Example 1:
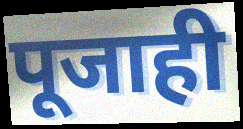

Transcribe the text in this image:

पूजाही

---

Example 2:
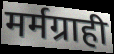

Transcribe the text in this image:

मर्मग्राही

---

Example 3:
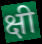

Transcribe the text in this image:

क्षी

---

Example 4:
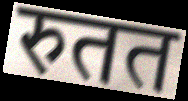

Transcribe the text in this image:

रुतत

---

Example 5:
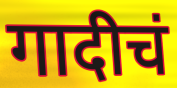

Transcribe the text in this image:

गादीचं